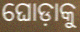
ଘୋଡ଼ାକୁ